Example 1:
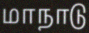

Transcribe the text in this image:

மாநாடு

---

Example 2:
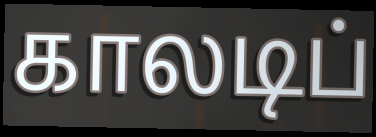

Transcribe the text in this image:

காலடிப்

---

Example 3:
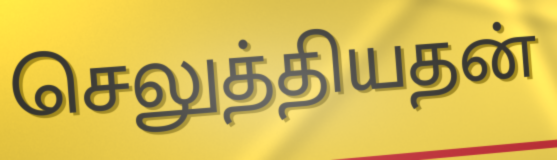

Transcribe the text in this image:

செலுத்தியதன்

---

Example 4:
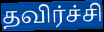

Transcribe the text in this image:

தவிர்ச்சி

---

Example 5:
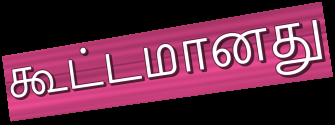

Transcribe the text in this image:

கூட்டமானது